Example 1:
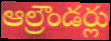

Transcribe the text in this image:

ఆల్రౌండర్లు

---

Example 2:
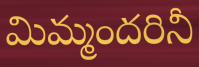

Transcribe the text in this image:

మిమ్మందరినీ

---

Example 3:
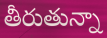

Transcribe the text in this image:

తీరుతున్నా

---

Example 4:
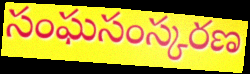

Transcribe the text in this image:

సంఘసంస్కరణ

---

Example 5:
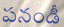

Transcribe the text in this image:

పనండీ